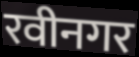
रवीनगर